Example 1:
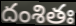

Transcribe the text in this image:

దంశితః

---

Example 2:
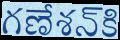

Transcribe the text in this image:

గణేశన్‍కి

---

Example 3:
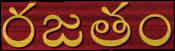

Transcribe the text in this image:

రజతం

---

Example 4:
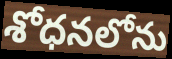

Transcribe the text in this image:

శోధనలోను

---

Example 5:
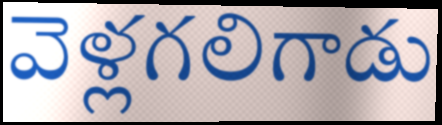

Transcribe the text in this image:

వెళ్లగలిగాడు